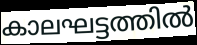
കാലഘട്ടത്തിൽ